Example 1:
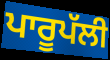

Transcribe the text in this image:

ਪਾਰੂਪੱਲੀ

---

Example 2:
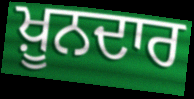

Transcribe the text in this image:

ਖ਼ੂਨਦਾਰ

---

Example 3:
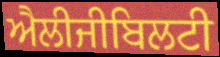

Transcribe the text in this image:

ਐਲੀਜੀਬਿਲਟੀ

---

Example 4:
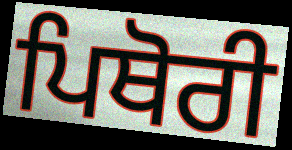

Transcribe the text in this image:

ਪਿਥੋਰੀ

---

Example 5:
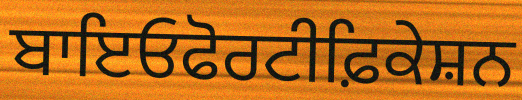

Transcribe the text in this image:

ਬਾਇਓਫੋਰਟੀਫ਼ਿਕੇਸ਼ਨ